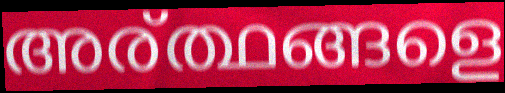
അര്ത്ഥങ്ങളെ